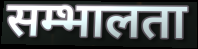
सम्भालता